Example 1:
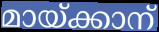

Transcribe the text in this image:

മായ്ക്കാന്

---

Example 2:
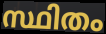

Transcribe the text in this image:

സ്ഥിതം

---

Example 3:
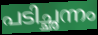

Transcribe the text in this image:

പടിച്ഛന്നം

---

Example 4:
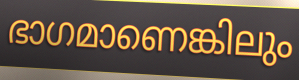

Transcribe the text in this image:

ഭാഗമാണെങ്കിലും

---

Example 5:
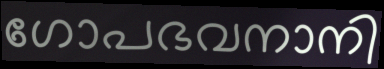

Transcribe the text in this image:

ഗോപഭവനാനി